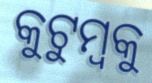
କୁଟୁମ୍ବକୁ